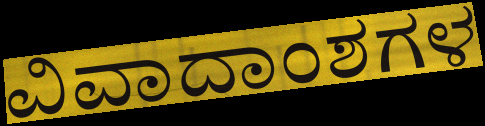
ವಿವಾದಾಂಶಗಳ